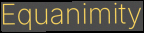
Equanimity